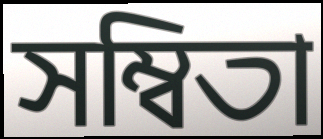
সম্বিতা